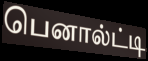
பெனால்ட்டி